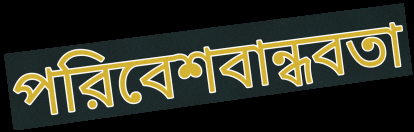
পরিবেশবান্ধবতা